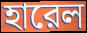
হারেল